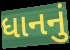
ધાનનું